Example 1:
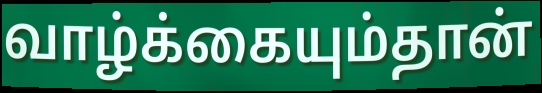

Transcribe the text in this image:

வாழ்க்கையும்தான்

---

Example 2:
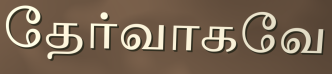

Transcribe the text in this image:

தேர்வாகவே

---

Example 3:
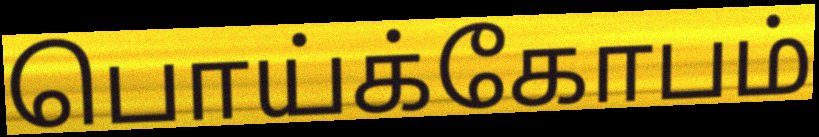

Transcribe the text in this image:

பொய்க்கோபம்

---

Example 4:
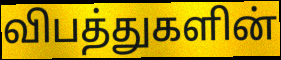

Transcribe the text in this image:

விபத்துகளின்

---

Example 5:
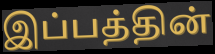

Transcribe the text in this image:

இப்பத்தின்